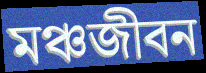
মঞ্চজীবন